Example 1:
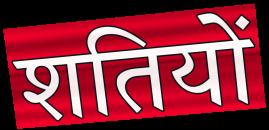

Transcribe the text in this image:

शतियों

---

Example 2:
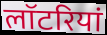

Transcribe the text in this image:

लॉटरियां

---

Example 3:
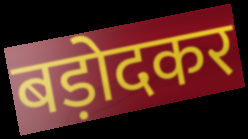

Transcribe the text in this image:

बड़ोदकर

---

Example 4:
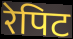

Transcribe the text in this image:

रेपिट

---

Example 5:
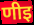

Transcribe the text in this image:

णीइ